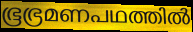
ഭൂഭ്രമണപഥത്തിൽ